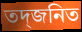
তদ্জনিত